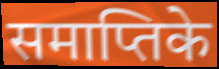
समाप्तिके